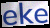
eke